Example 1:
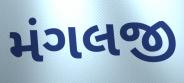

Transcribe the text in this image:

મંગલજી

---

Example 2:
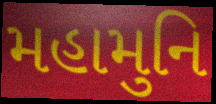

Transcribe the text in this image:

મહામુનિ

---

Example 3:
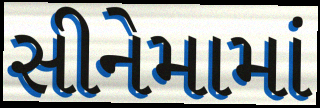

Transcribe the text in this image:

સીનેમામાં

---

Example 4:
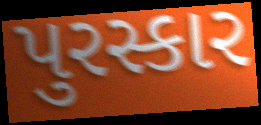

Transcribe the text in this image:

પુરસ્કાર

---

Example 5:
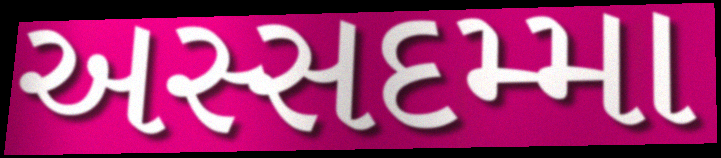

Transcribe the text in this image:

અસ્સદમ્મા